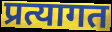
प्रत्यागत